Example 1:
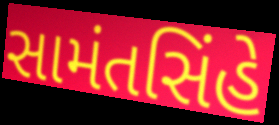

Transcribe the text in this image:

સામંતસિંહે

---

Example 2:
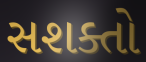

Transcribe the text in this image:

સશક્તો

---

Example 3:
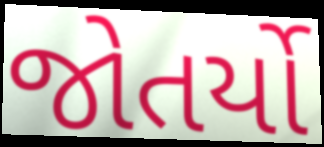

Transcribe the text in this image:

જોતર્યો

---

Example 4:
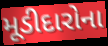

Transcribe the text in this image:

મૂડીદારોના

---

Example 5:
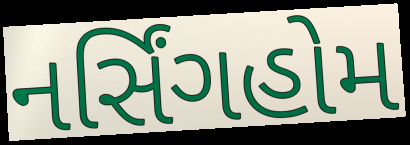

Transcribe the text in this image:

નર્સિંગહોમ